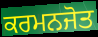
ਕਰਮਨਜੋਤ